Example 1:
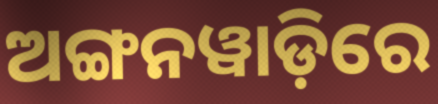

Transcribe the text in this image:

ଅଙ୍ଗନୱାଡ଼ିରେ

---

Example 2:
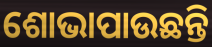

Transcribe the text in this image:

ଶୋଭାପାଉଛନ୍ତି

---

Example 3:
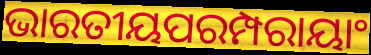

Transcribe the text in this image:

ଭାରତୀୟପରମ୍ପରାୟାଂ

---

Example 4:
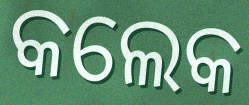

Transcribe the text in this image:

କଲେକ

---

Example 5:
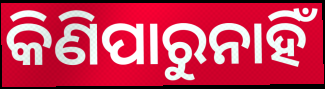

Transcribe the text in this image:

କିଣିପାରୁନାହିଁ